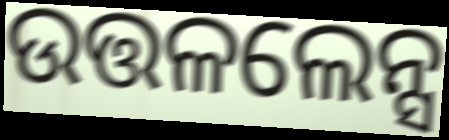
ଉତ୍ତଳଲେନ୍ସ